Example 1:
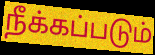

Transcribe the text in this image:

நீக்கப்படும்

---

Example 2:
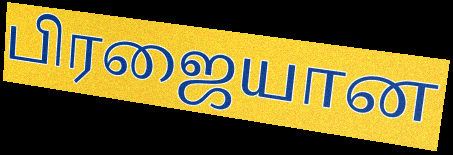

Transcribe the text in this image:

பிரஜையான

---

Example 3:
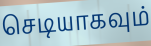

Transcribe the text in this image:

செடியாகவும்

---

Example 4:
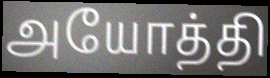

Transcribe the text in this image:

அயோத்தி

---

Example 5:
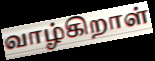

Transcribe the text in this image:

வாழ்கிறாள்